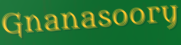
Gnanasoory